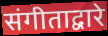
संगीताद्वारे